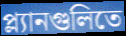
প্ল্যানগুলিতে